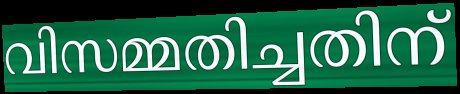
വിസമ്മതിച്ചതിന്